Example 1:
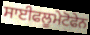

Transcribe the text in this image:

ਸਾਈਫਲੂਮੇਟੋਫੇਨ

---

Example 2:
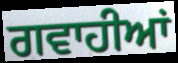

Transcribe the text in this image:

ਗਵਾਹੀਆਂ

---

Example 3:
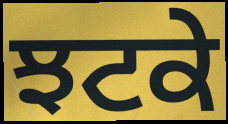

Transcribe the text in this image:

ਝਟਕੇ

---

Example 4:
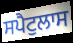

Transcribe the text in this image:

ਸਪੈਟੁਲਾਸ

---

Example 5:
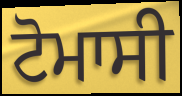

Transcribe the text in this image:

ਟੋਮਾਸੀ